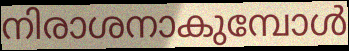
നിരാശനാകുമ്പോൾ